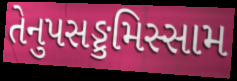
તેનુપસઙ્કમિસ્સામ